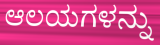
ಆಲಯಗಳನ್ನು